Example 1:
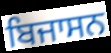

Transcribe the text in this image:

ਬਿਜਾਸਨ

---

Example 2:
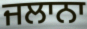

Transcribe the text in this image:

ਜਲਾਨਾ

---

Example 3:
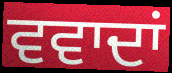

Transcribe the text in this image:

ਵਵਾਦਾਂ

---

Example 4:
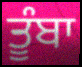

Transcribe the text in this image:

ਤੂੰਬਾ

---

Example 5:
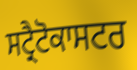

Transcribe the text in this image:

ਸਟ੍ਰੈਟੋਕਾਸਟਰ